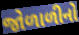
જોળાળીનો